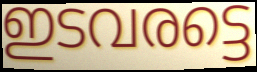
ഇടവരട്ടെ